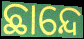
ଛାନ୍ଦେ